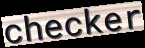
checker